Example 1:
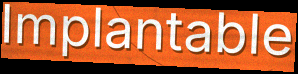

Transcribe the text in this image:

Implantable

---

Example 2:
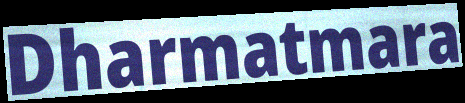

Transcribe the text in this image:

Dharmatmara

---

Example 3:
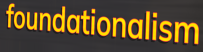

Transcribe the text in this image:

foundationalism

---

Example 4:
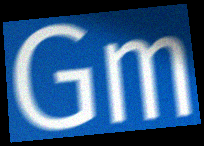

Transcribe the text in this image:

Gm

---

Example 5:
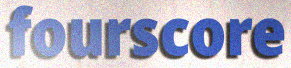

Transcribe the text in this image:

fourscore